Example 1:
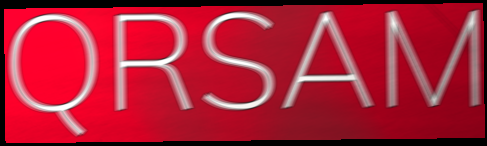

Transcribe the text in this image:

QRSAM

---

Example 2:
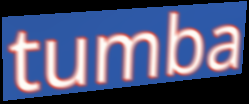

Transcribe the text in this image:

tumba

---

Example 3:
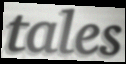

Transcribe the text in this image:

tales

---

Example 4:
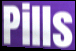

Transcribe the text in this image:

Pills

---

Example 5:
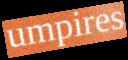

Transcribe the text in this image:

umpires